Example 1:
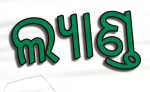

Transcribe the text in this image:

ଲ୍ୟାଣ୍ଡ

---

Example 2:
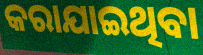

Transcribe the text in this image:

କରାଯାଇଥିବା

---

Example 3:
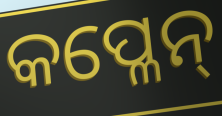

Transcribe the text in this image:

କପ୍ଳେନ୍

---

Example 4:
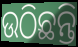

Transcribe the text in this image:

ଉଠିଛନ୍ତି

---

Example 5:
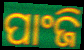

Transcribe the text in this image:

ପାଂଜି